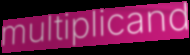
multiplicand